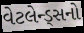
વેટલેન્ડ્સનો